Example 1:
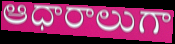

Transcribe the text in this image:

ఆధారాలుగా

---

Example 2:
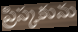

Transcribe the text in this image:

ప్రిస్కకును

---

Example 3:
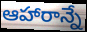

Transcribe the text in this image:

ఆహారాన్నే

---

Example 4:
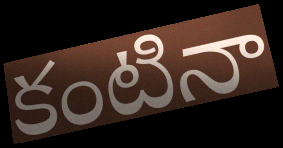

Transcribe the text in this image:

కంటినా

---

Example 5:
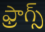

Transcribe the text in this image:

ఫ్రాగ్స్